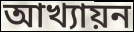
আখ্যায়ন